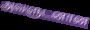
அவளுடனான